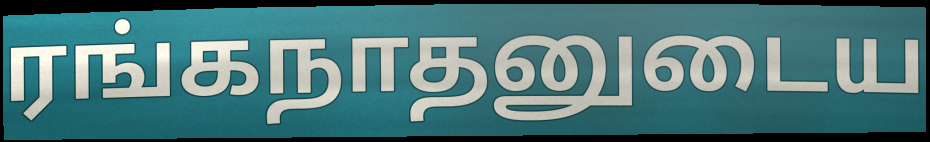
ரங்கநாதனுடைய